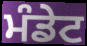
ਮੰਡੇਟ